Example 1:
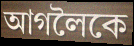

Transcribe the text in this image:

আগলৈকে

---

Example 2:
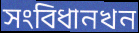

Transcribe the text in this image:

সংবিধানখন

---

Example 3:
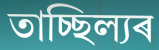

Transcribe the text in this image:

তাচ্ছিল্যৰ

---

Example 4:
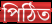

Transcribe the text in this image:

পিঠিত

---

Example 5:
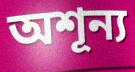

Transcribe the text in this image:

অশূন্য